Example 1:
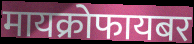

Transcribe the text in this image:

मायक्रोफायबर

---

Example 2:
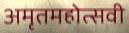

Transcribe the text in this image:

अमृतमहोत्सवी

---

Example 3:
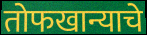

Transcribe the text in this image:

तोफखान्याचे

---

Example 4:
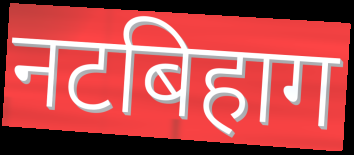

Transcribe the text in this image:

नटबिहाग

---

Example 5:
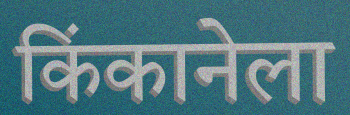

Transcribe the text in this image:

किंकानेला